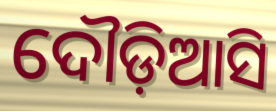
ଦୌଡ଼ିଆସି